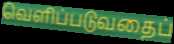
வெளிப்படுவதைப்